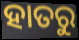
ହାତରୁ